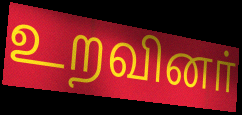
உறவினர்